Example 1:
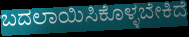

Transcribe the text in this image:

ಬದಲಾಯಿಸಿಕೊಳ್ಳಬೇಕಿದೆ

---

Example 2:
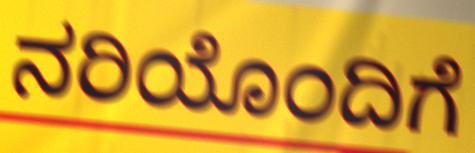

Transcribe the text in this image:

ನರಿಯೊಂದಿಗೆ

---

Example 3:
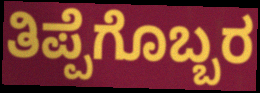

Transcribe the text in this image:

ತಿಪ್ಪೆಗೊಬ್ಬರ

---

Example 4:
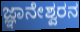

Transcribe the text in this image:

ಜ್ಞಾನೇಶ್ವರನ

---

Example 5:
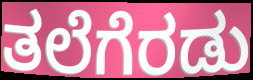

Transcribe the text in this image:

ತಲೆಗೆರಡು